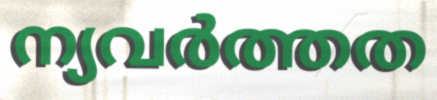
ന്യവർത്തത